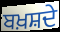
ਬਖ਼ਸ਼ਦੇ